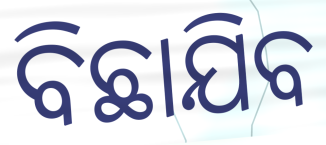
ବିଛାଯିବ